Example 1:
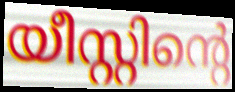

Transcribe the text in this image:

യീസ്റ്റിന്റെ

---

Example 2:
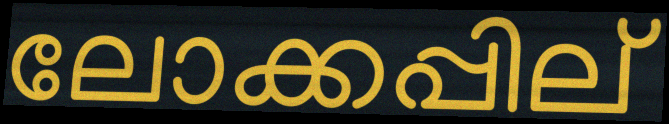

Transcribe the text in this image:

ലോക്കപ്പില്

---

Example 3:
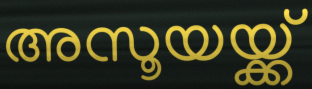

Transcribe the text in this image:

അസൂയയ്ക്ക്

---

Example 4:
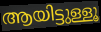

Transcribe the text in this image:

ആയിട്ടുള്ളൂ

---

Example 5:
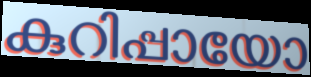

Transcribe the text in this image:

കുറിപ്പായോ